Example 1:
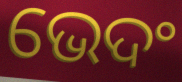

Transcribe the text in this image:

ଭେଦଂ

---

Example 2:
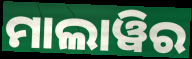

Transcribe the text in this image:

ମାଲାୱିର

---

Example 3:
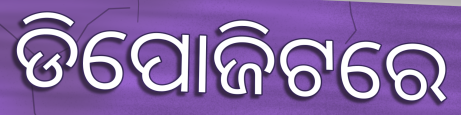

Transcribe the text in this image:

ଡିପୋଜିଟରେ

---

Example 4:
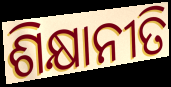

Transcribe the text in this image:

ଶିକ୍ଷାନୀତି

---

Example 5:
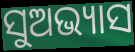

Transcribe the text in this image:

ସୁଅଭ୍ୟାସ